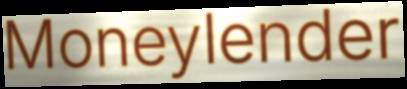
Moneylender